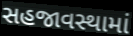
સહજાવસ્થામાં